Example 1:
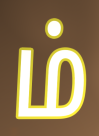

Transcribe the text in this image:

ம்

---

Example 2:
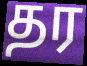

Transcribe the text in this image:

தர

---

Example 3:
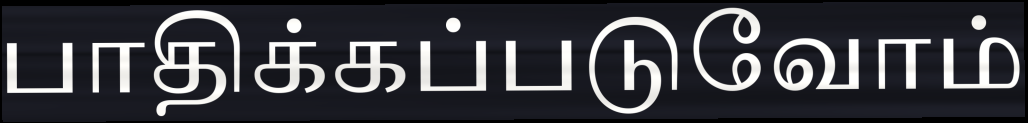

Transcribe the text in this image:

பாதிக்கப்படுவோம்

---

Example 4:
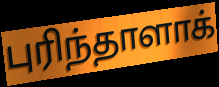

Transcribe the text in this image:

புரிந்தாளாக்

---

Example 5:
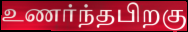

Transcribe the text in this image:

உணர்ந்தபிறகு